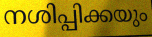
നശിപ്പിക്കയും